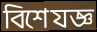
বিশেযজ্ঞ